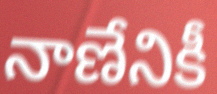
నాణేనికీ